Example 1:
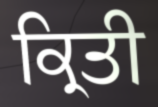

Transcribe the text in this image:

ਕ੍ਰਿਤੀ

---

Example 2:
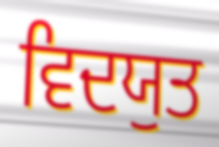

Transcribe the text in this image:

ਵਿਦਯੁਤ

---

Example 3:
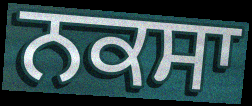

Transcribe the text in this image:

ਨਕਸਾ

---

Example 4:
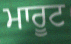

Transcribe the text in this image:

ਮਾਰੂਟ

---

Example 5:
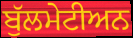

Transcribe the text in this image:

ਬੁੱਲਮੇਟੀਅਨ